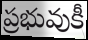
ప్రభువుకీ